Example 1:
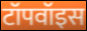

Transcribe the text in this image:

टॉपवॉइस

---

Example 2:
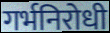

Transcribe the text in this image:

गर्भनिरोधी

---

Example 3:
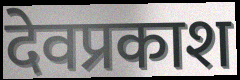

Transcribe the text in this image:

देवप्रकाश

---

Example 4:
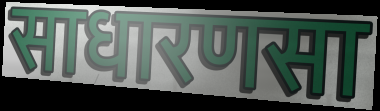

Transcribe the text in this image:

साधारणसा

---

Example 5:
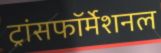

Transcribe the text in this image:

ट्रांसफॉर्मेशनल